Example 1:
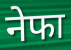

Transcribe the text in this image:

नेफा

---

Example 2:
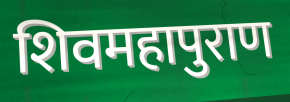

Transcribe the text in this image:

शिवमहापुराण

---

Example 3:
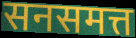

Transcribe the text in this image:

सनसमत्त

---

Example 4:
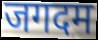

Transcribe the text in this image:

जगदम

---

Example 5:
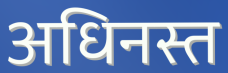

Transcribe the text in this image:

अधिनस्त